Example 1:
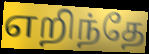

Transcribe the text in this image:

எறிந்தே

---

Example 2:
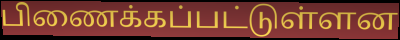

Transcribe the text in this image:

பிணைக்கப்பட்டுள்ளன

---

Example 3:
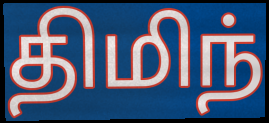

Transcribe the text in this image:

திமிந்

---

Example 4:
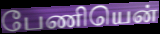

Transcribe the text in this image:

பேணியென்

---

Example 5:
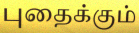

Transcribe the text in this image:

புதைக்கும்